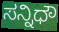
ಸನ್ನಿಧೌ